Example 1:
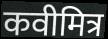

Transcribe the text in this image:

कवीमित्र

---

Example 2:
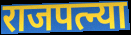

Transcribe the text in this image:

राजपत्न्या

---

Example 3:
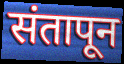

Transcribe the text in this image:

संतापून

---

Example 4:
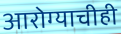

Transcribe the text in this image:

आरोग्याचीही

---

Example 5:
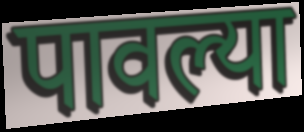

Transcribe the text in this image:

पावल्या